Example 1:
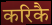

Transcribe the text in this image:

करिकै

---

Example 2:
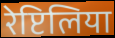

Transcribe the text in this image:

रेप्टिलिया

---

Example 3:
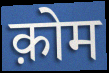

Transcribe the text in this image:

क़ोम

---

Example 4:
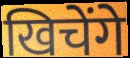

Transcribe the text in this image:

खिचेंगे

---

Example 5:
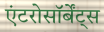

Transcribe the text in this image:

एंटरोसॉर्बेंट्स